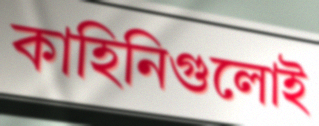
কাহিনিগুলোই